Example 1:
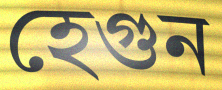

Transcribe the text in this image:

হেগুন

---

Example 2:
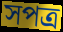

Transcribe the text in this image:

সপত্র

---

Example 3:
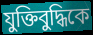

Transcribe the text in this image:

যুক্তিবুদ্ধিকে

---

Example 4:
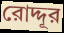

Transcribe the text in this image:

রোদ্দূর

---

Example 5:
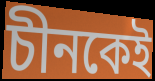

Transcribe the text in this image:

চীনকেই